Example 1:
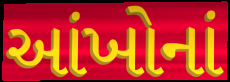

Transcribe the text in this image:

આંખોનાં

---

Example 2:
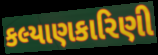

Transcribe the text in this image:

કલ્યાણકારિણી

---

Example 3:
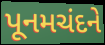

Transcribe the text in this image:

પૂનમચંદને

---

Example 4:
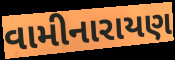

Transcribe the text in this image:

વામીનારાયણ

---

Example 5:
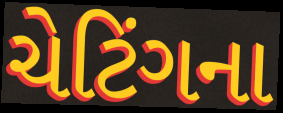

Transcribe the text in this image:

ચેટિંગના